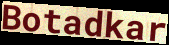
Botadkar